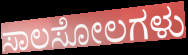
ಸಾಲಸೋಲಗಳು